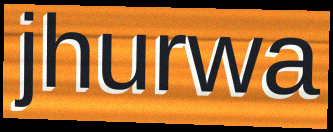
jhurwa